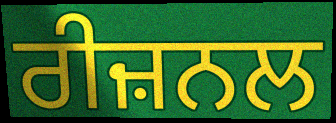
ਰੀਜ਼ਨਲ